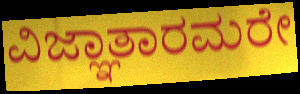
ವಿಜ್ಞಾತಾರಮರೇ